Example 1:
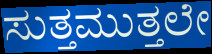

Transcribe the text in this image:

ಸುತ್ತಮುತ್ತಲೇ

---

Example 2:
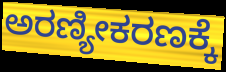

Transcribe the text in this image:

ಅರಣ್ಯೀಕರಣಕ್ಕೆ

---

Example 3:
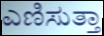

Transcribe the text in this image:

ಎಣಿಸುತ್ತಾ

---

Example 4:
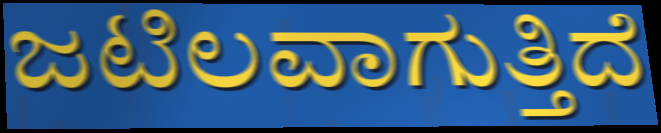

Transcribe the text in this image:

ಜಟಿಲವಾಗುತ್ತಿದೆ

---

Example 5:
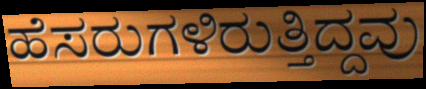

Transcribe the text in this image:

ಹೆಸರುಗಳಿರುತ್ತಿದ್ದವು